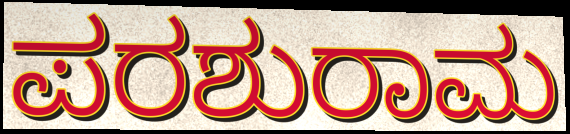
ಪರಶುರಾಮ